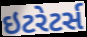
ઇટરેટર્સ